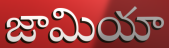
జామియా